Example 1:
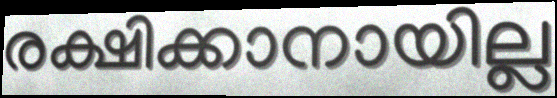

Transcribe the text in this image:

രക്ഷിക്കാനായില്ല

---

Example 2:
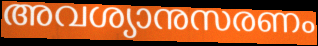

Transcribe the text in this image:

അവശ്യാനുസരണം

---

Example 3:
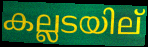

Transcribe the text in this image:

കല്ലടയില്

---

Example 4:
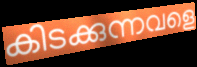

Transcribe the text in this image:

കിടക്കുന്നവളെ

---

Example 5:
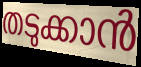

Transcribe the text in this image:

തടുക്കാൻ